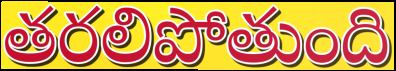
తరలిపోతుంది